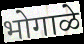
भोगाळे